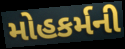
મોહકર્મની